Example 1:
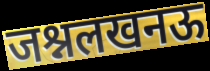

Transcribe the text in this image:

जश्नलखनऊ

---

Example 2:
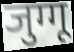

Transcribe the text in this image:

जुग्गू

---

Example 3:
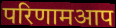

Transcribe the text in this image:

परिणामआप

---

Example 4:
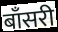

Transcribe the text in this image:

बाँसरी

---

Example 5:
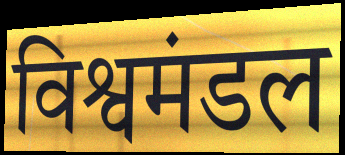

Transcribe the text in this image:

विश्वमंडल